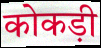
कोकड़ी